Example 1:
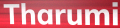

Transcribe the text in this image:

Tharumi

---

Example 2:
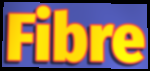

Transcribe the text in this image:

Fibre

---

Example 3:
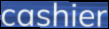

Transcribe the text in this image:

cashier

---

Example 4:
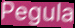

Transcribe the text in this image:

Pegula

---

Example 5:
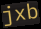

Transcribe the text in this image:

jxb